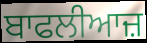
ਬਾਫਲੀਆਜ਼